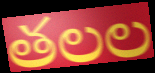
తలల